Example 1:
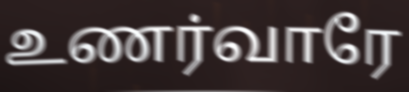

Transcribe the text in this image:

உணர்வாரே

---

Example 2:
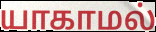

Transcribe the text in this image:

யாகாமல்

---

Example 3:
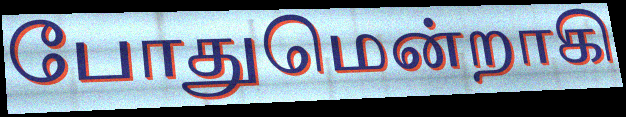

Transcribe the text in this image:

போதுமென்றாகி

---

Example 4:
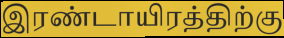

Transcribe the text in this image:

இரண்டாயிரத்திற்கு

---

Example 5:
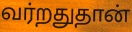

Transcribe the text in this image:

வர்றதுதான்